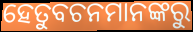
ହେତୁବଚନମାନଙ୍କରୁ